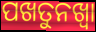
ପଖତୁନଖ୍ୱା